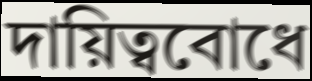
দায়িত্ববোধে